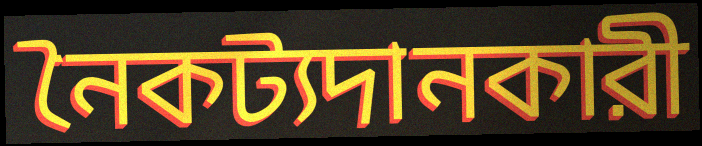
নৈকট্যদানকারী